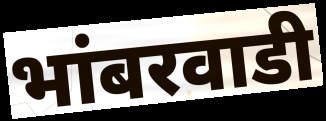
भांबरवाडी